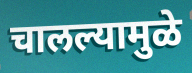
चालल्यामुळे